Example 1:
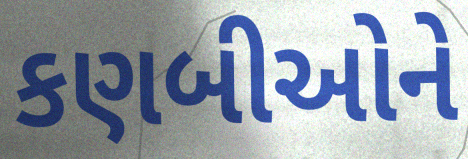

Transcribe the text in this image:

કણબીઓને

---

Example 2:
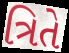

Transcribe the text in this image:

ત્રિતે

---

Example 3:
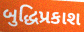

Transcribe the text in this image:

બુદ્ધિપ્રકાશ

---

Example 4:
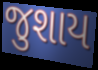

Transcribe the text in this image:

જુશાય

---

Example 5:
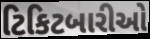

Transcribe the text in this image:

ટિકિટબારીઓ